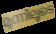
മുന്നിലൂടെ